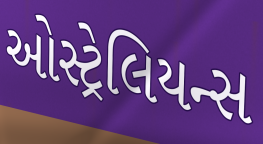
ઓસ્ટ્રેલિયન્સ